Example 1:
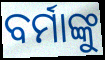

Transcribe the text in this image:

ବର୍ମାଙ୍କୁ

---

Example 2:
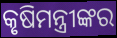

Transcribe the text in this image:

କୃଷିମନ୍ତ୍ରୀଙ୍କର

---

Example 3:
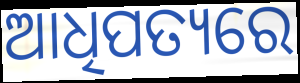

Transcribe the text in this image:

ଆଧିପତ୍ୟରେ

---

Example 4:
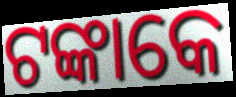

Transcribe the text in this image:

ଟଙ୍କାକେ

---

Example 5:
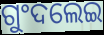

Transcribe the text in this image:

ଗୁଂଦଲେଇ